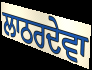
ਲਾਠਰਦੇਵਾ